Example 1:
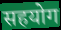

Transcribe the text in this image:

सहयोग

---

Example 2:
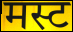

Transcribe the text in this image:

मस्ट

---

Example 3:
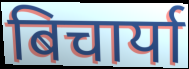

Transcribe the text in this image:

बिचार्या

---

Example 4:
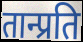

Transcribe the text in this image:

तान्प्रति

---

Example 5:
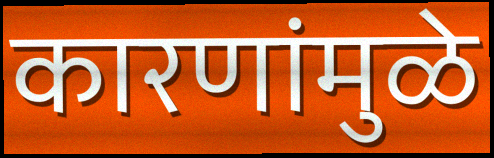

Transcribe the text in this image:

कारणांमुळे